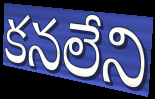
కనలేని